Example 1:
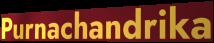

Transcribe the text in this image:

Purnachandrika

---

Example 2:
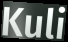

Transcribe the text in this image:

Kuli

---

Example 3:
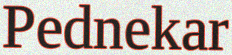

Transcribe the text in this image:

Pednekar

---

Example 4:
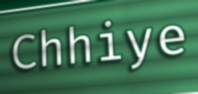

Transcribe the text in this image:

Chhiye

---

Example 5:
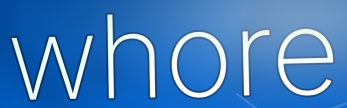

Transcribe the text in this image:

whore